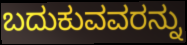
ಬದುಕುವವರನ್ನು